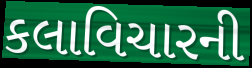
કલાવિચારની